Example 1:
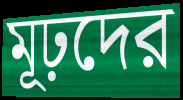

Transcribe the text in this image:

মূঢ়দের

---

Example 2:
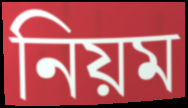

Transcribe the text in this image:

নিয়ম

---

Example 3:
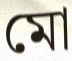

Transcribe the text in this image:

মো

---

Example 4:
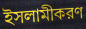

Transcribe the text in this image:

ইসলামীকরণ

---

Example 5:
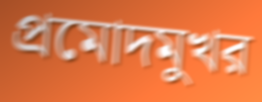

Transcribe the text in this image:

প্রমোদমুখর